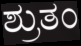
ಶ್ರುತಂ